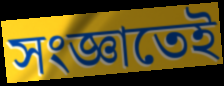
সংজ্ঞাতেই